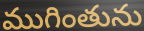
ముగింతును